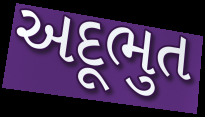
અદૂભુત